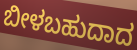
ಬೀಳಬಹುದಾದ